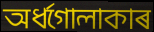
অৰ্ধগোলাকাৰ